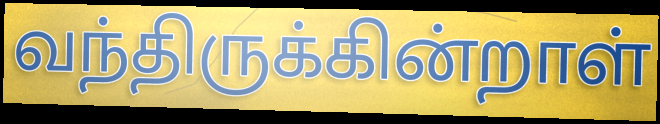
வந்திருக்கின்றாள்